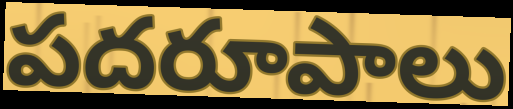
పదరూపాలు